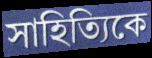
সাহিত্যিকে